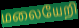
மலையேறி